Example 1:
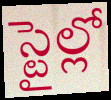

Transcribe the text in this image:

స్టైల్లో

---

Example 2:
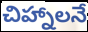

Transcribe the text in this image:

చిహ్నాలనే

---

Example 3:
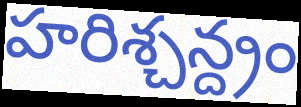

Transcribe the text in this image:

హరిశ్చన్ద్రం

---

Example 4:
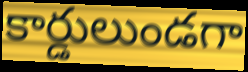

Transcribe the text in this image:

కార్డులుండగా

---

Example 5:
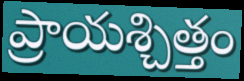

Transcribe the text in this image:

ప్రాయశ్చిత్తం